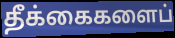
தீக்கைகளைப்